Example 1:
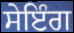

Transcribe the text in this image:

ਸੇਇੰਗ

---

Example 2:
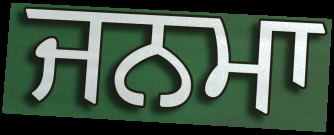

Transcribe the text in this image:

ਜਨਮਾ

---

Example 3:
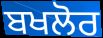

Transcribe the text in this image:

ਬਖਲੋਰ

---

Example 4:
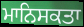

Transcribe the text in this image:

ਮਾਨਿਸਕਤਾ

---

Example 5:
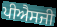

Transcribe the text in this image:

ਪੀਐਸਜੀ